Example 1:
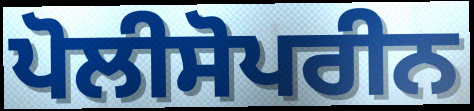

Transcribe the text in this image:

ਪੋਲੀਸੋਪਰੀਨ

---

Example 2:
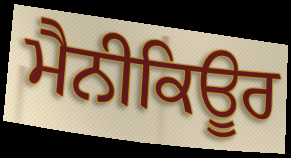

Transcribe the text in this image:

ਮੈਨੀਕਿਊਰ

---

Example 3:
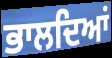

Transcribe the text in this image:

ਭਾਲਦਿਆਂ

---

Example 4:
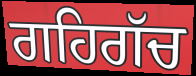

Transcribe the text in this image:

ਗਹਿਗੱਚ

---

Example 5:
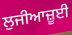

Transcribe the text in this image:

ਲੁਜੀਆਜ਼ੂਈ